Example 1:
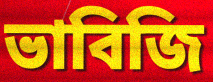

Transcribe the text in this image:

ভাবিজি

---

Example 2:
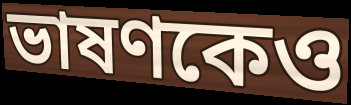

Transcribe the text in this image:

ভাষণকেও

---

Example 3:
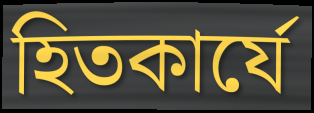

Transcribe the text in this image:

হিতকার্যে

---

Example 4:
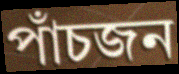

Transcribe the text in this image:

পাঁচজন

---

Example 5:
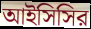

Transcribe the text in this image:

আইসিসির